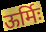
ऊर्मिः